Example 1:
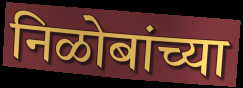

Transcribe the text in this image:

निळोबांच्या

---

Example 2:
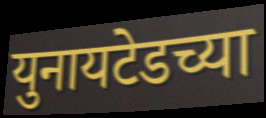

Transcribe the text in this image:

युनायटेडच्या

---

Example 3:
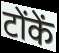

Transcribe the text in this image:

टोंकें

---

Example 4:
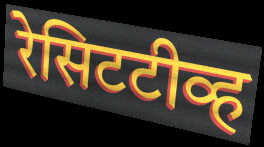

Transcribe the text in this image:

रेसिटटीव्ह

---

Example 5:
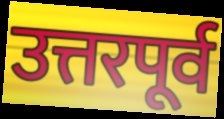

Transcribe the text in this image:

उत्तरपूर्व